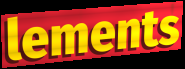
lements